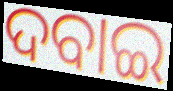
ଦବାଇ